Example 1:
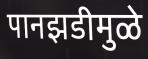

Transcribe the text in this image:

पानझडीमुळे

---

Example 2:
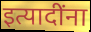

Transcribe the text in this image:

इत्यादींना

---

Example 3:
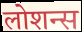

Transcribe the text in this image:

लोशन्स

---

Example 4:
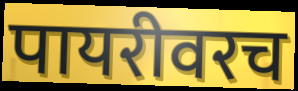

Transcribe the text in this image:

पायरीवरच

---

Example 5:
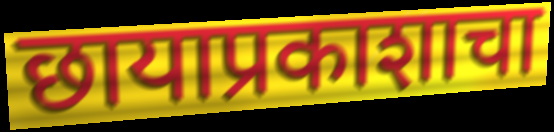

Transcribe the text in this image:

छायाप्रकाशाचा